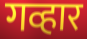
गव्हार